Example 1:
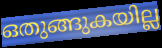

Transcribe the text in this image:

ഒതുങ്ങുകയില്ല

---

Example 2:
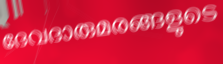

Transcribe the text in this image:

ദേവദാരുമരങ്ങളുടെ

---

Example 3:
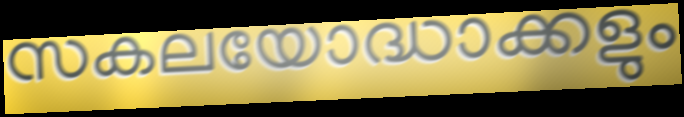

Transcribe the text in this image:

സകലയോദ്ധാക്കളും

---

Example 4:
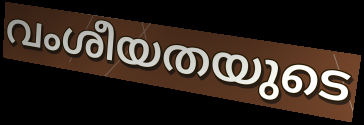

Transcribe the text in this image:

വംശീയതയുടെ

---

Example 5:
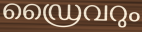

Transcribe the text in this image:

ഡ്രൈവറും